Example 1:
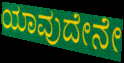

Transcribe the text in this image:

ಯಾವುದೇನೇ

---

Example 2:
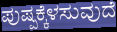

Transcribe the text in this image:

ಪುಷ್ಪಕ್ಕೆಳಸುವುದೆ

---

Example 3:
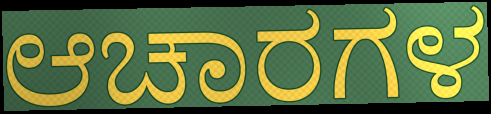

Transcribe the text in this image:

ಆಚಾರಗಳ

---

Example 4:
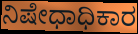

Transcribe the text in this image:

ನಿಷೇಧಾಧಿಕಾರ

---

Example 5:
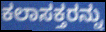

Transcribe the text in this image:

ಕಲಾಸಕ್ತರನ್ನು